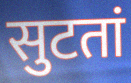
सुटतां